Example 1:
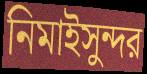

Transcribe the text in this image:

নিমাইসুন্দর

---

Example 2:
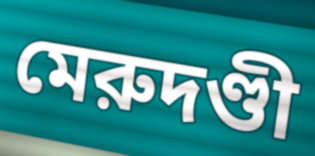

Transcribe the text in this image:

মেরুদণ্ডী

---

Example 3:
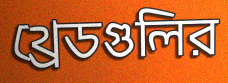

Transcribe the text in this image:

থ্রেডগুলির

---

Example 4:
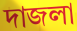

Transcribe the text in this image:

দাজলা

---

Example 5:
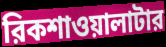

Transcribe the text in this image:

রিকশাওয়ালাটার